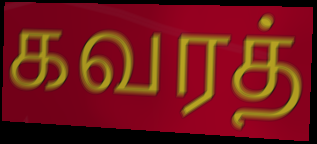
கவரத்